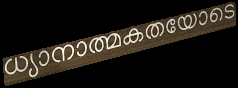
ധ്യാനാത്മകതയോടെ